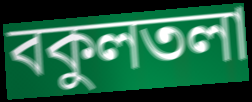
বকুলতলা